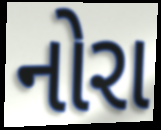
નોરા